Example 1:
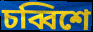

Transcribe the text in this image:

চব্বিশে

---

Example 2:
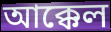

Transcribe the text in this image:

আক্কেল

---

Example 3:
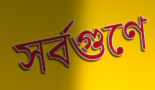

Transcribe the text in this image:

সর্বগুণে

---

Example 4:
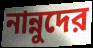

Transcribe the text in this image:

নান্নুদের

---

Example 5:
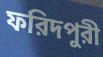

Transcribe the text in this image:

ফরিদপুরী